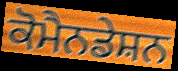
ਕੋਮੈਨਡੇਸ਼ਨ